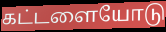
கட்டளையோடு